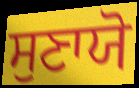
ਸੁਣਾਯੋ